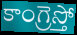
కాంగ్రెస్తో